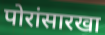
पोरांसारखा